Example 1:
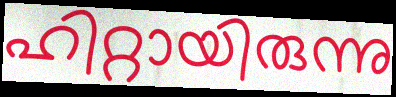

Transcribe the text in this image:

ഹിറ്റായിരുന്നു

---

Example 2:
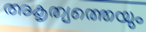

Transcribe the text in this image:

അകൃത്യത്തെയും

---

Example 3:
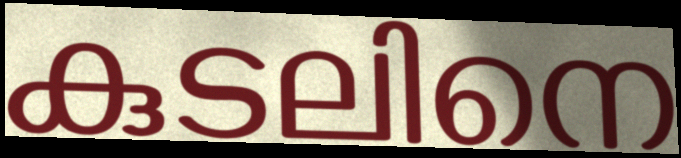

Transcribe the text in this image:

കുടലിനെ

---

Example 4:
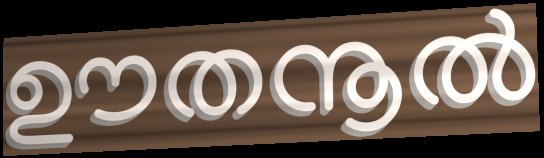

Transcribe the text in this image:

ഊതനൂൽ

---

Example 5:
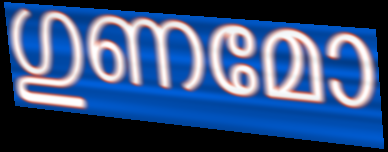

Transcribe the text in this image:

ഗുണമോ